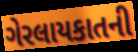
ગેરલાયકાતની